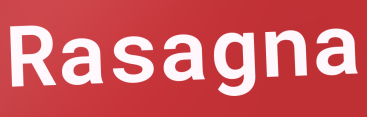
Rasagna